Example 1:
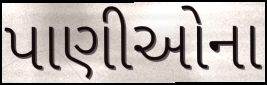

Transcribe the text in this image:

પાણીઓના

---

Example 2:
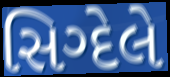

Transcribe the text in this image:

સિગ્દેલે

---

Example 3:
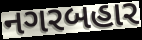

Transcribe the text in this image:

નગરબહાર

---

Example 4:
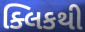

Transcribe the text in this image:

ક્લિકથી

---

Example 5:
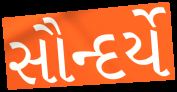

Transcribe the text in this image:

સૌન્દર્યે